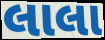
લાલા